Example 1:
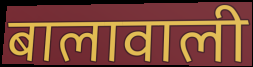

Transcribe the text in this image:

बालावाली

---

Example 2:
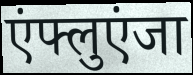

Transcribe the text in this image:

एंफ्लुएंजा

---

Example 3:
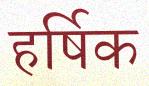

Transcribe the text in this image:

हर्षिक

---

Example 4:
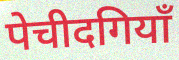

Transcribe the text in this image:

पेचीदगियाँ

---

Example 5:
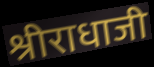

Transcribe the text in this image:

श्रीराधाजी